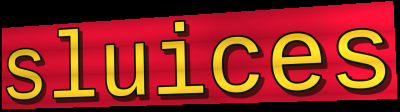
sluices